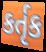
કર્તૃક